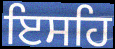
ਇਸਹਿ